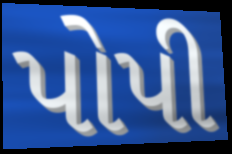
પોપી